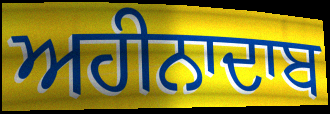
ਅਹੀਨਾਦਾਬ